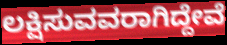
ಲಕ್ಷಿಸುವವರಾಗಿದ್ದೇವೆ